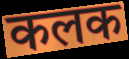
कलक